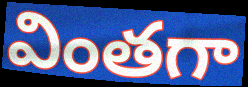
వింతగా